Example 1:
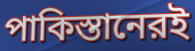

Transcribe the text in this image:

পাকিস্তানেরই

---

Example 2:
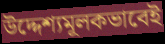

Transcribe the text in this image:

উদ্দেশ্যমূলকভাবেই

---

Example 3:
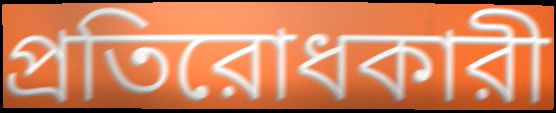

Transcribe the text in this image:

প্রতিরোধকারী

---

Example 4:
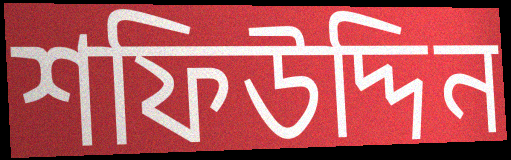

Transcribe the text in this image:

শফিউদ্দিন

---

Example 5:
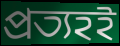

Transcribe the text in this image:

প্রত্যহই